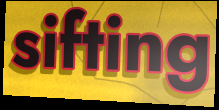
sifting